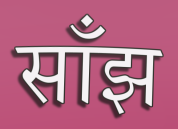
साँझ